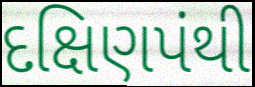
દક્ષિણપંથી